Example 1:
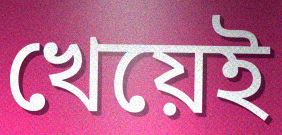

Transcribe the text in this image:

খেয়েই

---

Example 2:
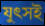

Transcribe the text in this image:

যুৎসই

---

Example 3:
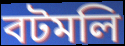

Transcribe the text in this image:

বটমলি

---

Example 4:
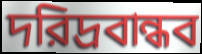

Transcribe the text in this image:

দরিদ্রবান্ধব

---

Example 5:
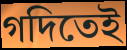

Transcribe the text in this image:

গদিতেই